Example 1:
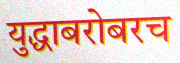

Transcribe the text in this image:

युद्धाबरोबरच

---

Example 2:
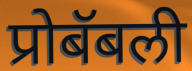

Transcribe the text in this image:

प्रोबॅबली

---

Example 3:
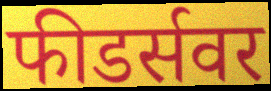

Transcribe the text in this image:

फीडर्सवर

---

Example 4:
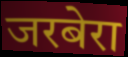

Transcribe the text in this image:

जरबेरा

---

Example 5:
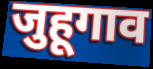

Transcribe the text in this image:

जुहूगाव